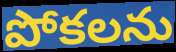
పోకలను